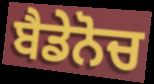
ਬੈਡੇਨੋਚ